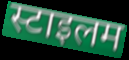
स्टाइलम